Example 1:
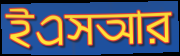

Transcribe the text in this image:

ইএসআর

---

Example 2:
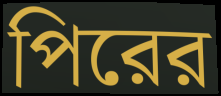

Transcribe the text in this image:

পিরের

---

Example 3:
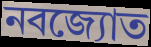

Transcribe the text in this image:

নবজ্যোত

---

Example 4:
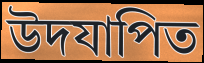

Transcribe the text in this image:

উদযাপিত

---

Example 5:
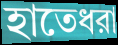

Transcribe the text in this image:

হাতেধরা